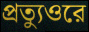
প্রত্যুওরে